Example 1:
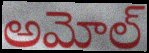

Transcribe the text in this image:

అమోల్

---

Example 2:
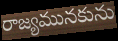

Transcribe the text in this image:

రాజ్యమునకును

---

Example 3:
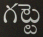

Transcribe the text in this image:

గట్టె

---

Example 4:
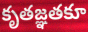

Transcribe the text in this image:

కృతజ్ఞతకూ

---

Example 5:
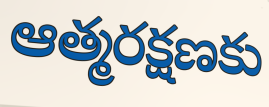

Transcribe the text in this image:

ఆత్మరక్షణకు